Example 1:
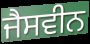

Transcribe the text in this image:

ਜੈਸਵੀਨ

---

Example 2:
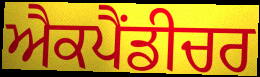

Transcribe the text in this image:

ਐਕਪੈਂਡੀਚਰ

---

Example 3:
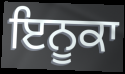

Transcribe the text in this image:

ਇਨੂਕਾ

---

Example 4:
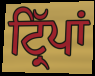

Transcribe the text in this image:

ਟ੍ਰਿੱਪਾਂ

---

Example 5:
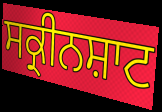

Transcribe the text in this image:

ਸਕ੍ਰੀਨਸ਼ਾਟ